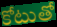
కోటుతో